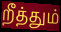
றீத்தும்